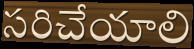
సరిచేయాలి